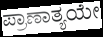
ಪ್ರಾಣಾತ್ಯಯೇ